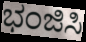
ಭಂಜಿಸಿ